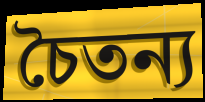
চৈতন্য